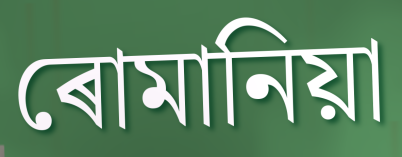
ৰোমানিয়া